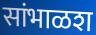
सांभाळश